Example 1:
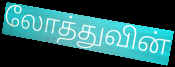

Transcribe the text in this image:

லோத்துவின்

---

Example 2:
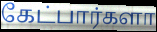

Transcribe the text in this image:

கேட்பார்களா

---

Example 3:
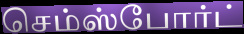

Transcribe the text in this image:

செம்ஸ்போர்ட்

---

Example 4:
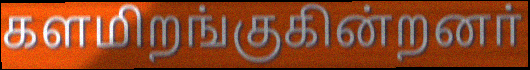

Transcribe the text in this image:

களமிறங்குகின்றனர்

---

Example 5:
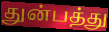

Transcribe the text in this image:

துன்பத்து